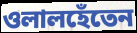
ওলালহেঁতেন